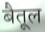
बैतूल